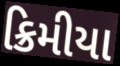
ક્રિમીયા